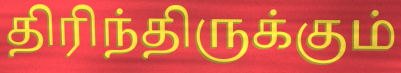
திரிந்திருக்கும்